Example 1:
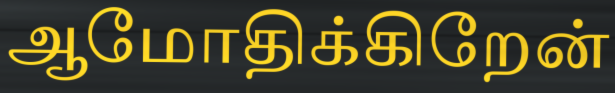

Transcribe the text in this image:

ஆமோதிக்கிறேன்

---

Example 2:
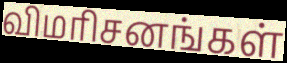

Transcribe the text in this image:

விமரிசனங்கள்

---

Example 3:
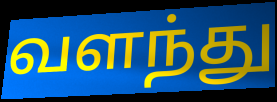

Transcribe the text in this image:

வளந்து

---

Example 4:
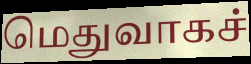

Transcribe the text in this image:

மெதுவாகச்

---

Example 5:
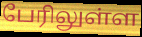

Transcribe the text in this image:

பேரிலுள்ள